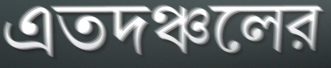
এতদঞ্চলের